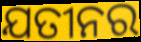
ଯତୀନର